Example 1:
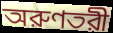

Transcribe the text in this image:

অরুণতরী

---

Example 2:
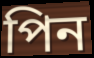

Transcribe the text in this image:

পিন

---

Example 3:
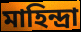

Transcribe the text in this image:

মাহিন্দ্রা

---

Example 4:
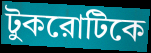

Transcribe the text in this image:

টুকরোটিকে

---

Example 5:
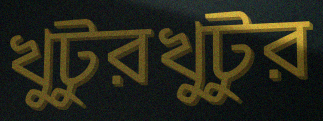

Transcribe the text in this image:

খুটুরখুটুর